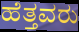
ಹೆತ್ತವರು